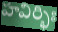
హవిర్భిః